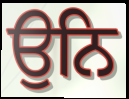
ਉਨਿ